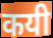
कयी